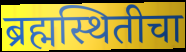
ब्रह्मस्थितीचा